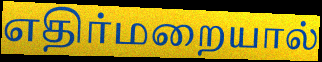
எதிர்மறையால்